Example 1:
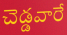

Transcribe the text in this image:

చెడ్డవారే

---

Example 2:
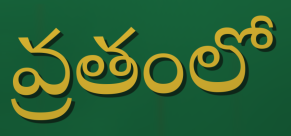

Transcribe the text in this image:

వ్రతంలో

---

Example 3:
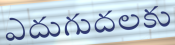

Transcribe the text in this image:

ఎదుగుదలకు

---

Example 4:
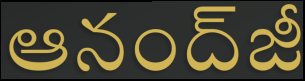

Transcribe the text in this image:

ఆనంద్‌జీ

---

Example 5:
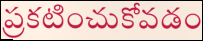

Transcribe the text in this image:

ప్రకటించుకోవడం